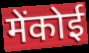
मेंकोई